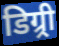
डिग्र्री